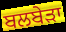
ਬਲਬੇਡ਼ਾ